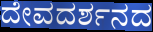
ದೇವದರ್ಶನದ